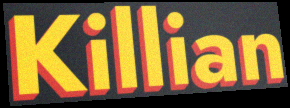
Killian